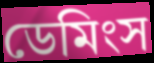
ডেমিংস